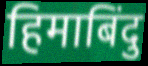
हिमाबिंदु